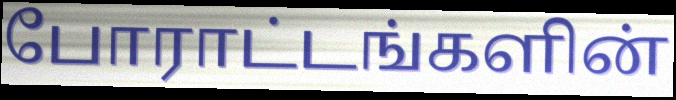
போராட்டங்களின்